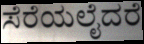
ಸೆರೆಯಲೈದರೆ